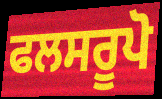
ਫਲਸਰੂਪੋ